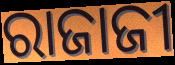
ରାଜାଜୀ